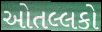
ઓતલ્લકો